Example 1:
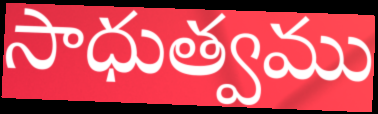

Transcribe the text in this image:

సాధుత్వము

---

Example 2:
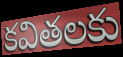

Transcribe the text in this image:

కవితలకు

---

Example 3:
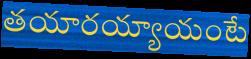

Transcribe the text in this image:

తయారయ్యాయంటే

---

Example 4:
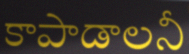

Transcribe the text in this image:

కాపాడాలనీ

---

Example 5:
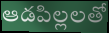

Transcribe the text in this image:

ఆడపిల్లలతో